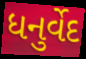
ધનુર્વેદ